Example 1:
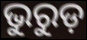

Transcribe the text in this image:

ଭୁରୁଡ଼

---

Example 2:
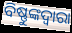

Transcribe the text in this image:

ବିଷ୍ଣୁଙ୍କଦ୍ୱାରା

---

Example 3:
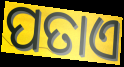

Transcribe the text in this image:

ପତାଏ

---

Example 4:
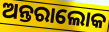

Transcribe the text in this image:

ଅନ୍ତରାଲୋକ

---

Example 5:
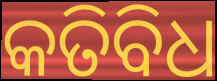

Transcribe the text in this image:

କତିବିଧ